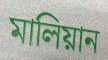
মালিয়ান